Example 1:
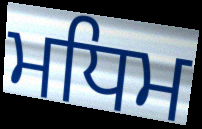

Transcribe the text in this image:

ਮਧਿਮ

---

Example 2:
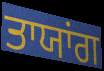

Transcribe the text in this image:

ਤਾਯਾਂਗ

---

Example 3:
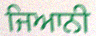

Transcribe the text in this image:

ਜਿਆਨੀ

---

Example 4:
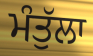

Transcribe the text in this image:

ਮੰਤੁੱਲਾ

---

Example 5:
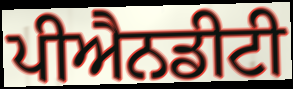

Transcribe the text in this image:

ਪੀਐਨਡੀਟੀ